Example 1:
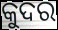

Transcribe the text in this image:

କୁଦର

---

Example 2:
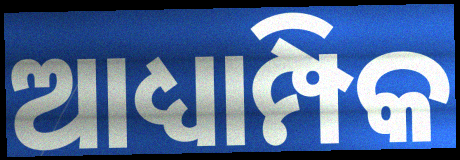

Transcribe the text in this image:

ଆଧ୍ୟାମ୍ପିକ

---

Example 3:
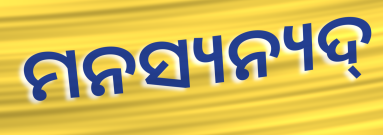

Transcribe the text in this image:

ମନସ୍ୟନ୍ୟଦ୍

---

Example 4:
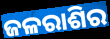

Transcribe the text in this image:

ଜଳରାଶିର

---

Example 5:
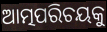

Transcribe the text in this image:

ଆତ୍ମପରିଚୟକୁ